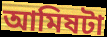
আমিষটা